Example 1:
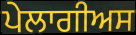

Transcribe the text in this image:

ਪੇਲਾਗੀਅਸ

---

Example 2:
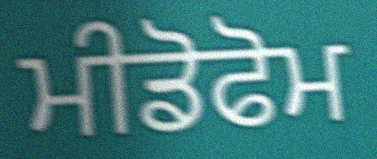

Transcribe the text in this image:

ਮੀਡੋਫੋਮ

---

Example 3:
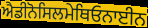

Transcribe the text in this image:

ਐਡੀਨੋਸਿਲਮੇਥਿਓਨਾਈਨ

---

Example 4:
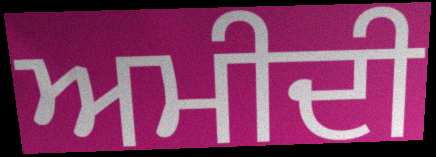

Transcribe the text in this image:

ਅਮੀਦੀ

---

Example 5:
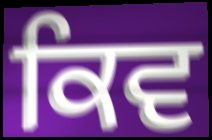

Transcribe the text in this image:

ਕਿਵ